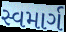
સ્વમાર્ગ